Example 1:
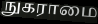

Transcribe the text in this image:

நுகராமை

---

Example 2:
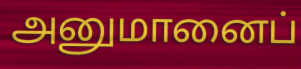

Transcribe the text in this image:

அனுமானைப்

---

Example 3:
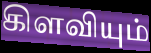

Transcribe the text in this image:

கிளவியும்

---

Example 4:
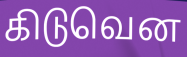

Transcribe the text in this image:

கிடுவென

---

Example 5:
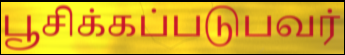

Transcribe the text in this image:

பூசிக்கப்படுபவர்